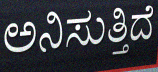
ಅನಿಸುತ್ತಿದೆ